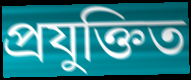
প্ৰযুক্তিত